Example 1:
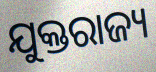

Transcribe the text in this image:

ଯୁକ୍ତରାଜ୍ୟ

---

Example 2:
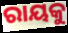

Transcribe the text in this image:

ରାୟକୁ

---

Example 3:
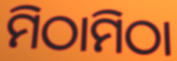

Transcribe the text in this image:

ମିଠାମିଠା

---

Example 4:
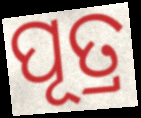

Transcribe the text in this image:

ପୂତ୍ର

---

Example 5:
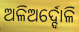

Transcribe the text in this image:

ଅଳିଅର୍ଦ୍ଦୋଳି